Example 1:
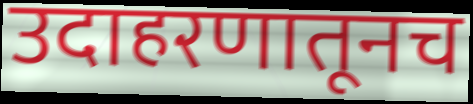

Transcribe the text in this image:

उदाहरणातूनच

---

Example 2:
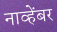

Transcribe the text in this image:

नाव्हेंबर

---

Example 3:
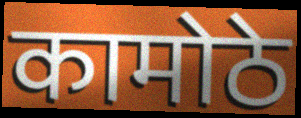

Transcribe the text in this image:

कामोठे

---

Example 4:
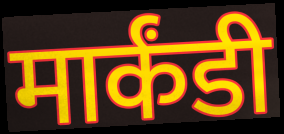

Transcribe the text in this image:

मार्कंडी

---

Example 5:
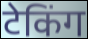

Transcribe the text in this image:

टेकिंग